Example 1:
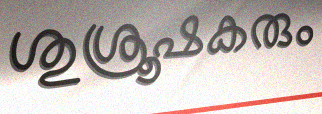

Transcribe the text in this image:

ശുശ്രൂഷകരും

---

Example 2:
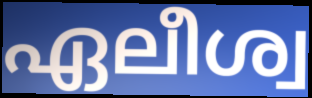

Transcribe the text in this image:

ഏലീശ്വ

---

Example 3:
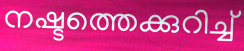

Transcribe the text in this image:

നഷ്ടത്തെക്കുറിച്ച്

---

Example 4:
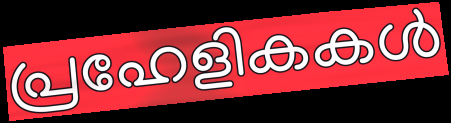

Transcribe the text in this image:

പ്രഹേളികകൾ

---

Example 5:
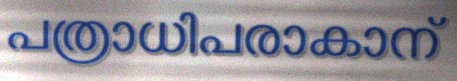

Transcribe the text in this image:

പത്രാധിപരാകാന്